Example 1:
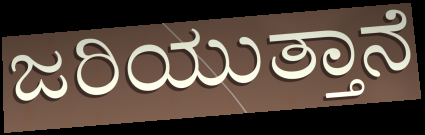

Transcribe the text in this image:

ಜರಿಯುತ್ತಾನೆ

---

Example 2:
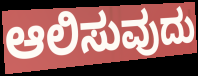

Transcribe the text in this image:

ಆಲಿಸುವುದು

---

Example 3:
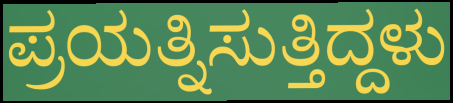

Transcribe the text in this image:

ಪ್ರಯತ್ನಿಸುತ್ತಿದ್ದಳು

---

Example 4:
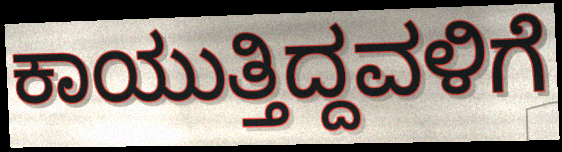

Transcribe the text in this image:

ಕಾಯುತ್ತಿದ್ದವಳಿಗೆ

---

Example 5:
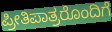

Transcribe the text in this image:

ಪ್ರೀತಿಪಾತ್ರರೊಂದಿಗೆ